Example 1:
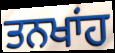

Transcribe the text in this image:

ਤਨਖਾਂਹ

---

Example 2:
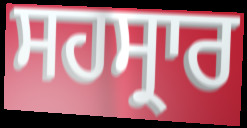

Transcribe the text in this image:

ਸਹਸ੍ਰਾਰ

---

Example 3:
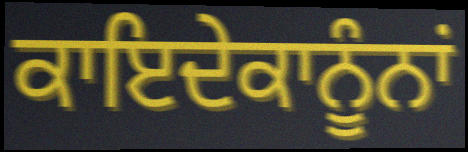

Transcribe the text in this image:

ਕਾਇਦੇਕਾਨੂੰਨਾਂ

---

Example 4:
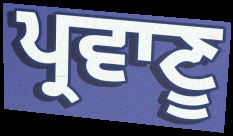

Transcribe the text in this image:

ਪ੍ਰਵਾਣੂ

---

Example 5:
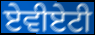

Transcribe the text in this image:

ਏਵੀਏਟੀ